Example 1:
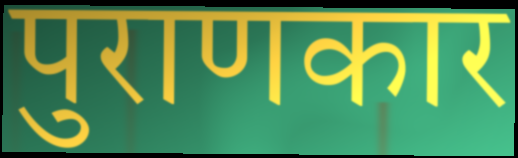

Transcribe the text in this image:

पुराणकार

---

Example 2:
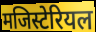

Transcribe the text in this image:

मजिस्टेरियल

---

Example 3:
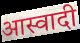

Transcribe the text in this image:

आस्वादी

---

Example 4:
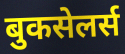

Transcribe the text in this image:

बुकसेलर्स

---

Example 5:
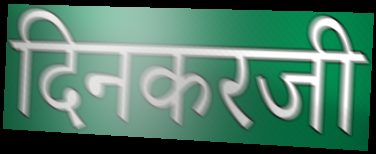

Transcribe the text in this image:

दिनकरजी